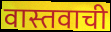
वास्तवाची